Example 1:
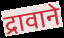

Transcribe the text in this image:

द्रावाने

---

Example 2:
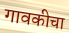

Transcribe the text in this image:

गावकीचा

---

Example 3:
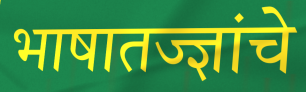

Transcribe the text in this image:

भाषातज्ज्ञांचे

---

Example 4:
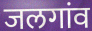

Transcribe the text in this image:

जलगांव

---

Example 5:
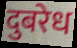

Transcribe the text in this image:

दुबरेध